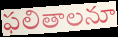
ఫలితాలనూ